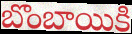
బొంబాయికి